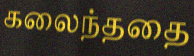
கலைந்ததை